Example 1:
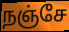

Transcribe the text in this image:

நஞ்சே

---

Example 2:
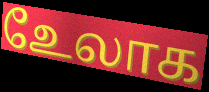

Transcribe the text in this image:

உேலாக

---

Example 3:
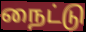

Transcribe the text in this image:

நைட்டு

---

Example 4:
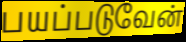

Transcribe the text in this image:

பயப்படுவேன்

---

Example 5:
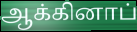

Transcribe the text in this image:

ஆக்கினாப்